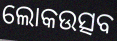
ଲୋକଉତ୍ସବ